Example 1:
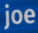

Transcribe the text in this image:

joe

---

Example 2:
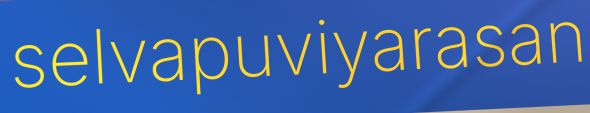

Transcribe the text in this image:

selvapuviyarasan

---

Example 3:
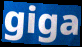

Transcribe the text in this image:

giga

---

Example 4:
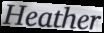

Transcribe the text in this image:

Heather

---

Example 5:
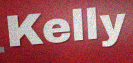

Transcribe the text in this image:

Kelly